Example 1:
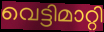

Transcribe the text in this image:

വെട്ടിമാറ്റി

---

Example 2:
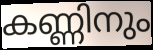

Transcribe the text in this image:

കണ്ണിനും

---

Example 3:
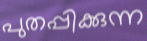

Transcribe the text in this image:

പുതപ്പിക്കുന്ന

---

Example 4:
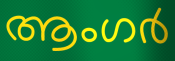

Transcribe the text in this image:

ആംഗർ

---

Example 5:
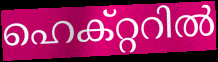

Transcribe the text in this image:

ഹെക്റ്ററിൽ